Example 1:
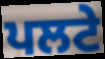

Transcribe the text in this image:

ਪਲਟੇ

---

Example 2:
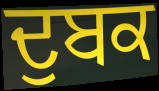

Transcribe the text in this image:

ਦੁਬਕ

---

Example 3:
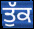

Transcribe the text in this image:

ਤੁੱਕ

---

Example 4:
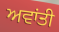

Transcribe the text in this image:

ਅਵਾਂਤੀ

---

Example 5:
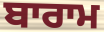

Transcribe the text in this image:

ਬਾਰਾਮ